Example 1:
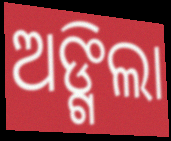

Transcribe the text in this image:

ଅଙ୍ଗିଲା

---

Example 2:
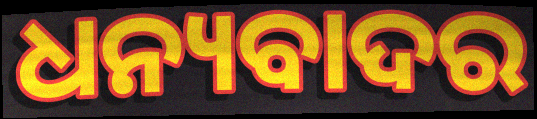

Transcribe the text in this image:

ଧନ୍ୟବାଦର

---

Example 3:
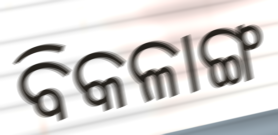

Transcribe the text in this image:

ବିକଳାଙ୍ଗ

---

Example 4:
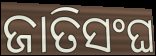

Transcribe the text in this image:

ଜାତିସଂଘ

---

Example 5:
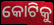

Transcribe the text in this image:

କୋଟିକୁ